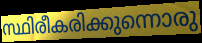
സ്ഥിരീകരിക്കുന്നൊരു